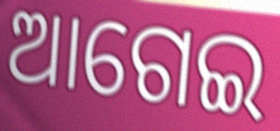
ଆଗେଇ